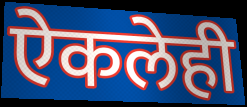
ऐकलेही